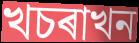
খচৰাখন